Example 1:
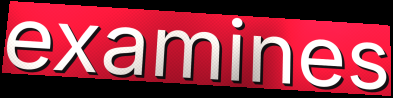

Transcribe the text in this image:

examines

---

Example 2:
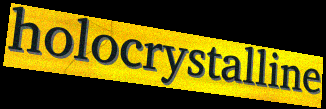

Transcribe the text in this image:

holocrystalline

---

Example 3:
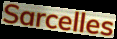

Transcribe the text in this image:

Sarcelles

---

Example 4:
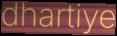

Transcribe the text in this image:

dhartiye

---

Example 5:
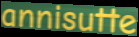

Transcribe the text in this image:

annisutte